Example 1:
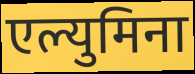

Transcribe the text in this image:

एल्युमिना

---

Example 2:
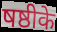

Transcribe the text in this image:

षष्ठीके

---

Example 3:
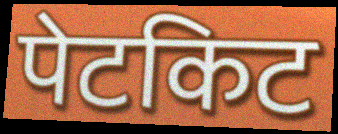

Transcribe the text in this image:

पेटकिट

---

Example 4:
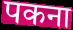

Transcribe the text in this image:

पकना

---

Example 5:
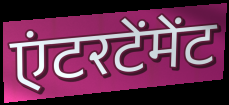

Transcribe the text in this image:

एंटरटेंमेंट